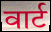
वार्ट